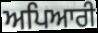
ਅਪਿਆਰੀ